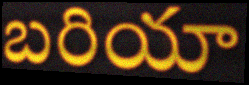
బరియా